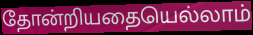
தோன்றியதையெல்லாம்